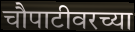
चौपाटीवरच्या